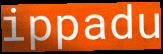
ippadu